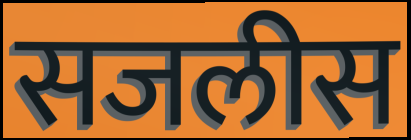
सजलीस